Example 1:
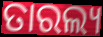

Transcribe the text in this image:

ତାରଲ୍ୟ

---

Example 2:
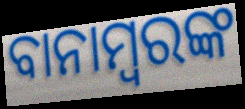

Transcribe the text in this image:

ବାନାମ୍ବରଙ୍କ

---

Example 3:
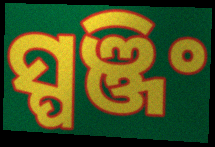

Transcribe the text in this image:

ସ୍ପଞ୍ଜିଂ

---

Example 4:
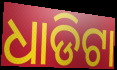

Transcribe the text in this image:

ଧାଡିଟା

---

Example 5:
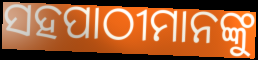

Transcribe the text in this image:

ସହପାଠୀମାନଙ୍କୁ